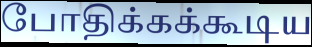
போதிக்கக்கூடிய